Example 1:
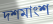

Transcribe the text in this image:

দশমাংশ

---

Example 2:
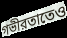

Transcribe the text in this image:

গভীরতাতেও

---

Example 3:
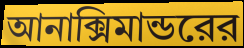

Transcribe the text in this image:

আনাক্সিমান্ডরের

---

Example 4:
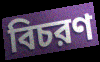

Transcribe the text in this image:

বিচরণ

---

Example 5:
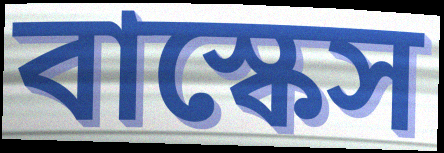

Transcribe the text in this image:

বাস্কেস